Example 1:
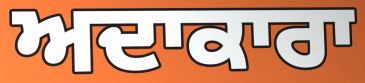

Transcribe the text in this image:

ਅਦਾਕਾਰਾ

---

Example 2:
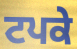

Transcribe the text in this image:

ਟਪਕੇ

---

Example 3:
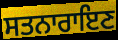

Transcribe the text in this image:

ਸਤਨਾਰਾਇਣ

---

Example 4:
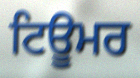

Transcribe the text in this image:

ਟਿਊਮਰ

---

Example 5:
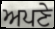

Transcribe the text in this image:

ਅਪਣੇ